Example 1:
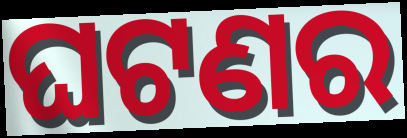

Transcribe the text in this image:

ଘଟଣର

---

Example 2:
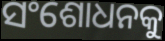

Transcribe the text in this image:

ସଂଶୋଧନକୁ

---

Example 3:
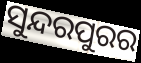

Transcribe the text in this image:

ସୁନ୍ଦରପୁରର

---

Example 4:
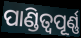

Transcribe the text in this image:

ପାଣ୍ଡିତ୍ୱପୂର୍ଣ୍ଣ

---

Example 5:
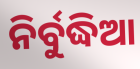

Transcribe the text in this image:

ନିର୍ବୁଦ୍ଧିଆ